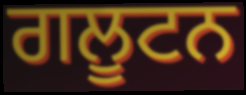
ਗਲੂਟਨ